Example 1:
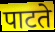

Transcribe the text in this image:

पाटते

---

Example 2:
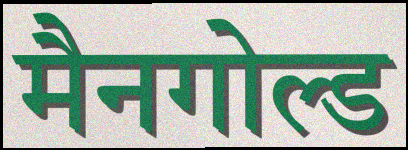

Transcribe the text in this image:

मैनगोल्ड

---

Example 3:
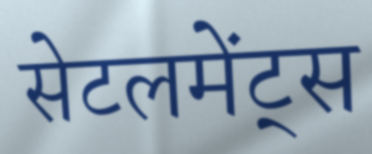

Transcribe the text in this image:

सेटलमेंट्स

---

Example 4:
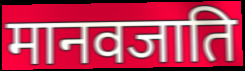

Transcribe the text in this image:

मानवजाति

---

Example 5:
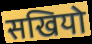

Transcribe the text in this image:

सखियो